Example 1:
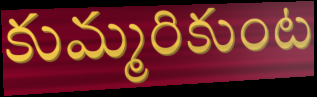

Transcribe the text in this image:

కుమ్మరికుంట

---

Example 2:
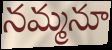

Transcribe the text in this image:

నమ్మనూ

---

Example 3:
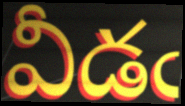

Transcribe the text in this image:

వీడఁ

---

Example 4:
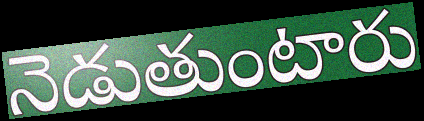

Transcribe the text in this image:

నెడుతుంటారు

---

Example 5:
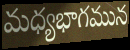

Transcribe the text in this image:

మధ్యభాగమున